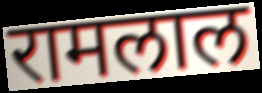
रामलाल